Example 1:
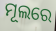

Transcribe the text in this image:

ମୂଲରେ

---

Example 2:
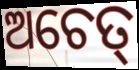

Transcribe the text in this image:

ଅଚେତ୍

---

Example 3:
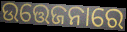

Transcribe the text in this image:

ଉତ୍ତେଜନାରେ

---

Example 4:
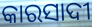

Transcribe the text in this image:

କାରସାଦୀ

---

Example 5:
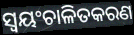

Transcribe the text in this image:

ସ୍ୱୟଂଚାଳିତକରଣ